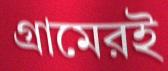
গ্রামেরই